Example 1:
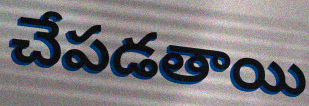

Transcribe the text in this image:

చేపడతాయి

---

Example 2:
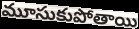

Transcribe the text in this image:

మూసుకుపోతాయి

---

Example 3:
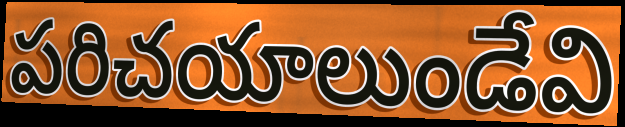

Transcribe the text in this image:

పరిచయాలుండేవి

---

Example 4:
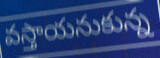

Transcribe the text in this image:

వస్తాయనుకున్న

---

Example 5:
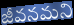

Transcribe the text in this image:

జీవనమని